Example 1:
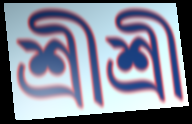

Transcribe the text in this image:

শ্রীশ্রী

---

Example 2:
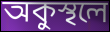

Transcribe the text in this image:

অকুস্থলে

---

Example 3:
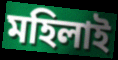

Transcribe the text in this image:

মহিলাই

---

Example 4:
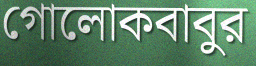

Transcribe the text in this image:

গোলোকবাবুর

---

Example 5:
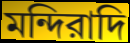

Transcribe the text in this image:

মন্দিরাদি